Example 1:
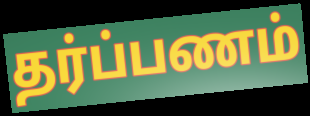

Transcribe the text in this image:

தர்ப்பணம்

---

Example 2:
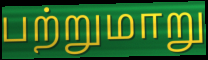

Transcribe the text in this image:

பற்றுமாறு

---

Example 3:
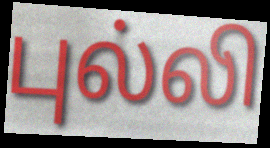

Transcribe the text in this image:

புல்லி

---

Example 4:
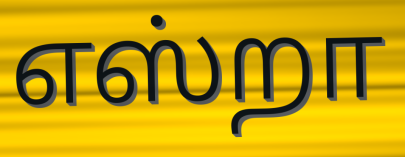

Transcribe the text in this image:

எஸ்றா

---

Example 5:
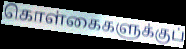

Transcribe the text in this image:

கொள்கைகளுக்குப்